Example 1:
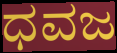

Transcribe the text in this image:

ಧವಜ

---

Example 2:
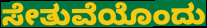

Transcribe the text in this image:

ಸೇತುವೆಯೊಂದು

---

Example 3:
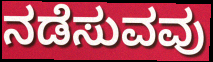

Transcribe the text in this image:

ನಡೆಸುವವು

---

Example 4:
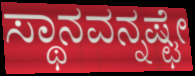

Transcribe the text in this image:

ಸ್ಥಾನವನ್ನಷ್ಟೇ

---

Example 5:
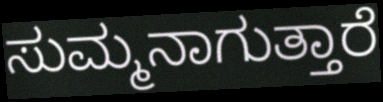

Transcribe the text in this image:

ಸುಮ್ಮನಾಗುತ್ತಾರೆ